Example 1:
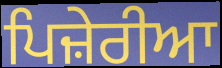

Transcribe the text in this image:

ਪਿਜ਼ੇਰੀਆ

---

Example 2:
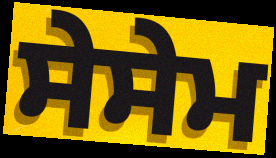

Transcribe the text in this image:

ਸੇਸੇਮ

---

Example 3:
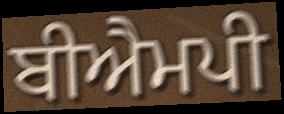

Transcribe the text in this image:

ਬੀਐਮਪੀ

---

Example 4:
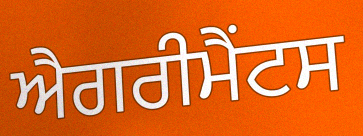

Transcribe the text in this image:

ਐਗਰੀਮੈਂਟਸ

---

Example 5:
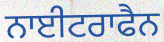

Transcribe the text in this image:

ਨਾਈਟਰਾਫੈਨ